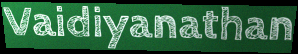
Vaidiyanathan